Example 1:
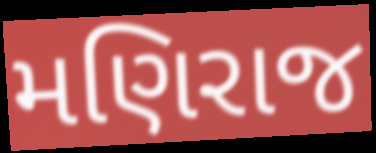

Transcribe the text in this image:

મણિરાજ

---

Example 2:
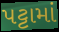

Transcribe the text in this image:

પટ્ટામાં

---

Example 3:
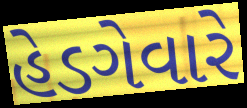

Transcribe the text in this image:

હેડગેવારે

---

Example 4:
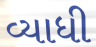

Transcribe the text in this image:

વ્યાધી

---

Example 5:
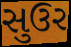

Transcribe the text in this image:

સુઉર